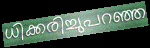
ധിക്കരിച്ചുപറഞ്ഞ